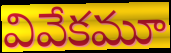
వివేకమూ